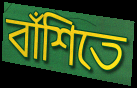
বাঁশিতে